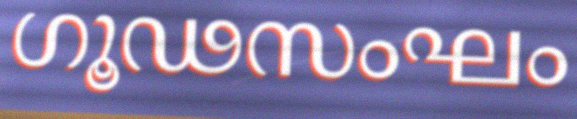
ഗൂഢസംഘം